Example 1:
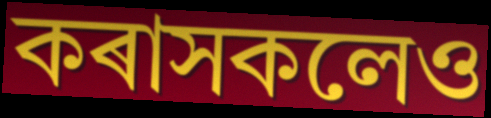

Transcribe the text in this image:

কৰাসকলেও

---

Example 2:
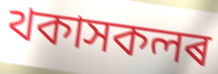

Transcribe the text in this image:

থকাসকলৰ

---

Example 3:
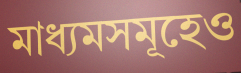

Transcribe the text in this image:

মাধ্য়মসমূহেও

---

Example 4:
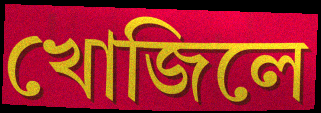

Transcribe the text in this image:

খোজিলে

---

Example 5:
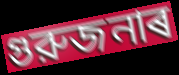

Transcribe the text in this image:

গুৰুজনাৰ